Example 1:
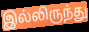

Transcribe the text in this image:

இல்லிருந்து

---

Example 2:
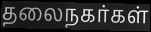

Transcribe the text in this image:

தலைநகர்கள்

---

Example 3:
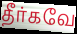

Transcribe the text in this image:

தீர்கவே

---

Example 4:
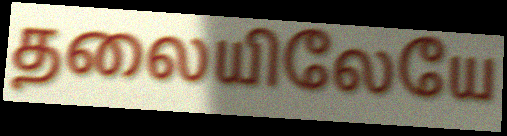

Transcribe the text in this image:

தலையிலேயே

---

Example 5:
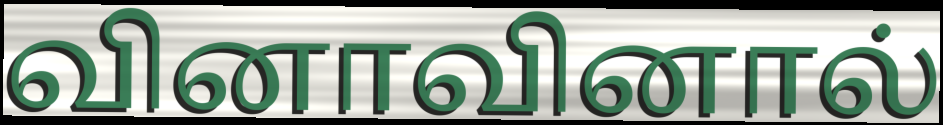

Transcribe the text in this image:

வினாவினால்